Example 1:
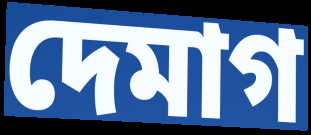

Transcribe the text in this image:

দেমাগ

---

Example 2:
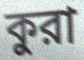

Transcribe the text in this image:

কুরা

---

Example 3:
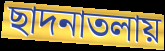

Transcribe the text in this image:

ছাদনাতলায়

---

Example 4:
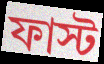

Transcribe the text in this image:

ফাস্ট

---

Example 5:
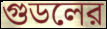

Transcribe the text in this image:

গুডলের